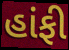
હાંફી